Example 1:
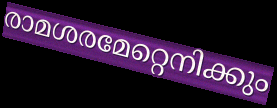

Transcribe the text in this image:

രാമശരമേറ്റെനിക്കും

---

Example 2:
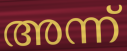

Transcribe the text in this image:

അന്ന്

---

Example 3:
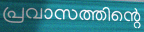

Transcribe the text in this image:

പ്രവാസത്തിന്റെ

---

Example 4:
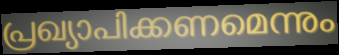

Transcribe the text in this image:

പ്രഖ്യാപിക്കണമെന്നും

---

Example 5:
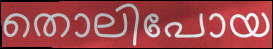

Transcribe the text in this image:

തൊലിപോയ